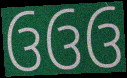
ઉઉઉ